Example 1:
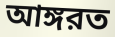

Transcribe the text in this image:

আঙ্গরত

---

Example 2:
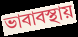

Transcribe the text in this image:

ভাবাবস্থায়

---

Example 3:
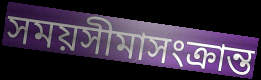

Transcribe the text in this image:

সময়সীমাসংক্রান্ত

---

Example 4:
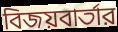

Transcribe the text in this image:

বিজয়বার্তার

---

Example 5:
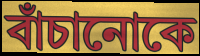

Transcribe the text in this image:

বাঁচানোকে